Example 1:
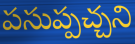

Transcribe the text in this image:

పసుప్పచ్చని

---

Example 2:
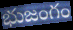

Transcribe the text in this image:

భుజంగం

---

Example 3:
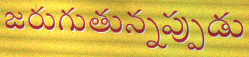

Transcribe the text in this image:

జరుగుతున్నప్పుడు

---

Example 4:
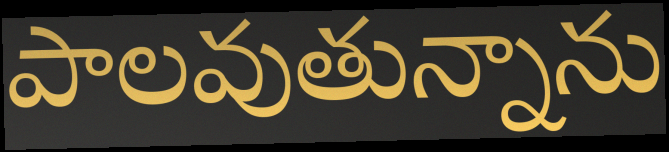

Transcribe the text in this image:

పాలవుతున్నాను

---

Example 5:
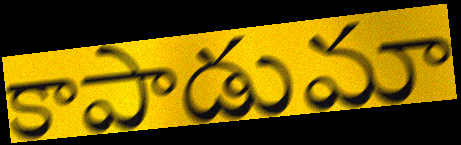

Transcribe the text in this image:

కాపాడుమా